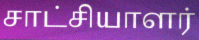
சாட்சியாளர்